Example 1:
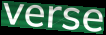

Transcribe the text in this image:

verse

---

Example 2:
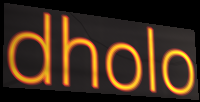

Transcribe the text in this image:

dholo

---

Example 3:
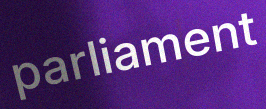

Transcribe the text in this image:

parliament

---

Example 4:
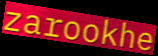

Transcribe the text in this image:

zarookhe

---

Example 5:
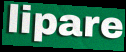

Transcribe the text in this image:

lipare